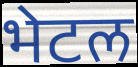
भेटल